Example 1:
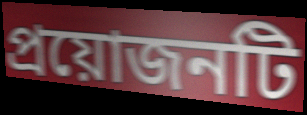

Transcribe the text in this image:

প্রয়োজনটি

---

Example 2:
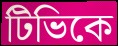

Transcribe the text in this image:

টিভিকে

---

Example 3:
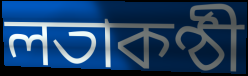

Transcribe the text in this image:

লতাকণ্ঠী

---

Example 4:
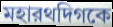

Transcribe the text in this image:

মহারথদিগকে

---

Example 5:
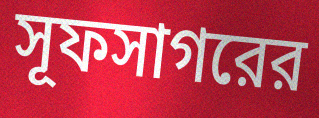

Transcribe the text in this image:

সূফসাগরের